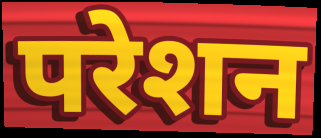
परेशन